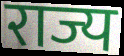
राज्‍य